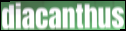
diacanthus